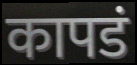
कापडं